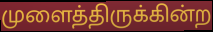
முளைத்திருக்கின்ற